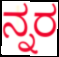
ನ್ನರ